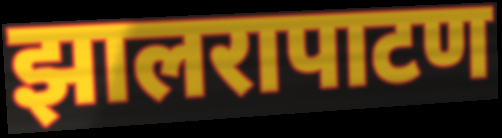
झालरापाटण